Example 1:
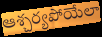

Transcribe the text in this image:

ఆశ్చర్యపోయేలా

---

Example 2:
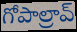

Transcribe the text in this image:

గోపాల్రావ్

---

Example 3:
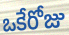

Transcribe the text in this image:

ఒకేరోజు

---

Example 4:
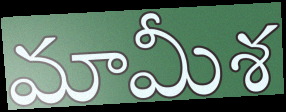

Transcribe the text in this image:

మామీశ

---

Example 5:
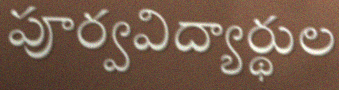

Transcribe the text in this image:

పూర్వవిద్యార్థుల